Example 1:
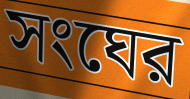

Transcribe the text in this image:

সংঘের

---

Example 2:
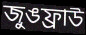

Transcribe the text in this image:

জুঙফ্রাউ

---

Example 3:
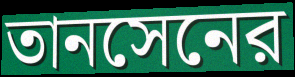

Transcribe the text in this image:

তানসেনের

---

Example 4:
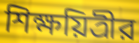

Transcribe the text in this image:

শিক্ষয়িত্রীর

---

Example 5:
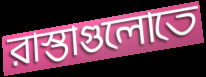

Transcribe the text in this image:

রাস্তাগুলোতে